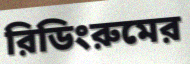
রিডিংরুমের